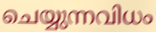
ചെയ്യുന്നവിധം